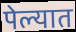
पेल्यात